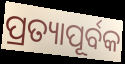
ପ୍ରତ୍ୟାପୂର୍ବକ